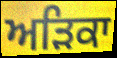
ਅੜਿਕਾ